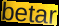
betar